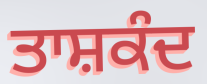
ਤਾਸ਼ਕੰਦ